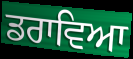
ਡਰਾਵਿਆ